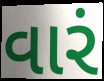
વારં